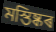
মস্তিষ্কৰ